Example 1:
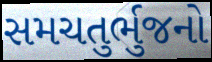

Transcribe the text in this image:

સમચતુર્ભુજનો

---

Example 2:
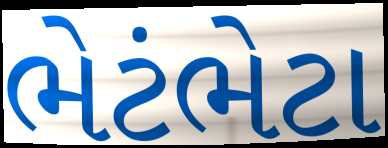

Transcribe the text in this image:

ભેટંભેટા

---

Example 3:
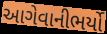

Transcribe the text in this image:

આગેવાનીભર્યો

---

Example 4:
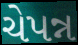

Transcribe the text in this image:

ચેપન્ન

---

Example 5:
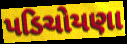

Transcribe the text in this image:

પડિચોયણા